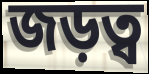
জড়ত্ব